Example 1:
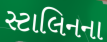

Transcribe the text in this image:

સ્ટાલિનના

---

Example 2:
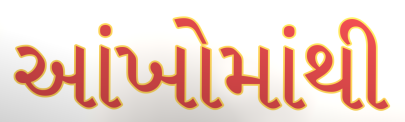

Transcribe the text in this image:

આંખોમાંથી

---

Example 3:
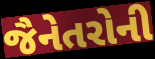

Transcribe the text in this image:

જૈનેતરોની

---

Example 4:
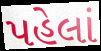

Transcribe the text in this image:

પહેલાં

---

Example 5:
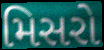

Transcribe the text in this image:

મિસરો